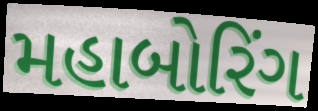
મહાબોરિંગ